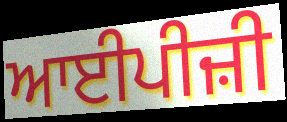
ਆਈਪੀਜ਼ੀ